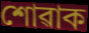
শোৱাক